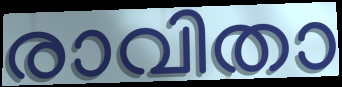
രാവിതാ